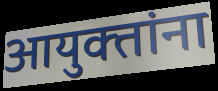
आयुक्‍तांना